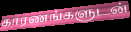
காரணங்களுடன்